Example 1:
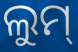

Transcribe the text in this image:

ଲୁମ୍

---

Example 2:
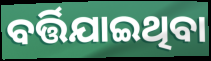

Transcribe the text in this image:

ବର୍ତ୍ତିଯାଇଥିବା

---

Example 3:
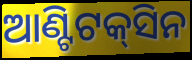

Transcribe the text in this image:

ଆଣ୍ଟିଟକ୍‌ସିନ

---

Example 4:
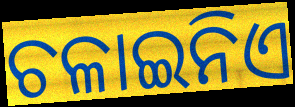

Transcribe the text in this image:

ଚଳାଇନିଏ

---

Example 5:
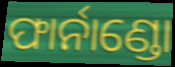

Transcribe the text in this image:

ଫାର୍ନାଣ୍ଡୋ